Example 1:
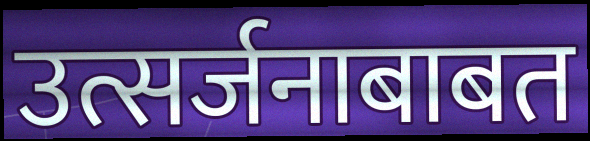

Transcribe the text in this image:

उत्सर्जनाबाबत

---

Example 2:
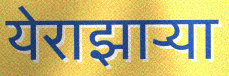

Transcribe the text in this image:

येराझाऱ्या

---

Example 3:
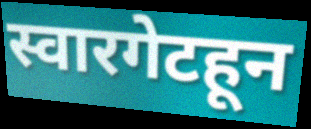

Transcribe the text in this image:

स्वारगेटहून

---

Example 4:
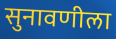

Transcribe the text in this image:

सुनावणीला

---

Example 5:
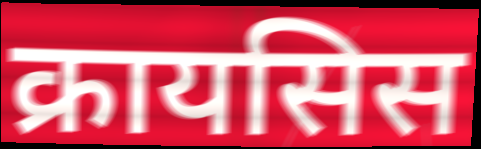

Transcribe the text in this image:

क्रायसिस